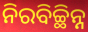
ନିରବିଚ୍ଛିନ୍ନ